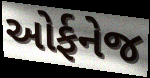
ઓર્ફનેજ